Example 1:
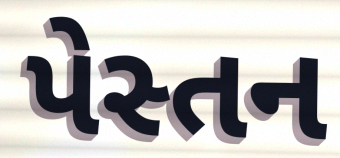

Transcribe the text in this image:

પેસ્તન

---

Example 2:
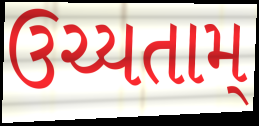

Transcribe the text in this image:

ઉચ્યતામ્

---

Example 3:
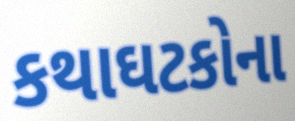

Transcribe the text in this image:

કથાઘટકોના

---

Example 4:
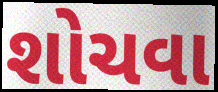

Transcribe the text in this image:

શોચવા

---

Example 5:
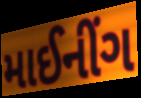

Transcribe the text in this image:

માઈનીંગ